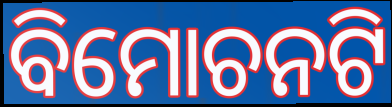
ବିମୋଚନଟି